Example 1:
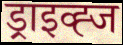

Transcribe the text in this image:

ड्राइव्ह्ज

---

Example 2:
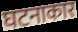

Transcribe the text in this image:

घटनाकार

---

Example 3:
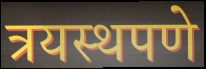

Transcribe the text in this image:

त्रयस्थपणे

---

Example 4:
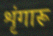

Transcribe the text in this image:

शृंगारू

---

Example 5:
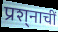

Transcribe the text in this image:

प्रश्नाचीं